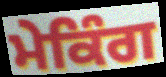
ਮੇਕਿੰਗ